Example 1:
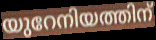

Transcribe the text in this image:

യുറേനിയത്തിന്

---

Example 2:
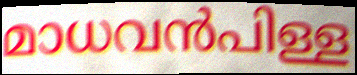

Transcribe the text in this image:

മാധവൻപിള്ള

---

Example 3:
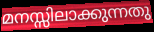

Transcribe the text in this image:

മനസ്സിലാക്കുന്നതു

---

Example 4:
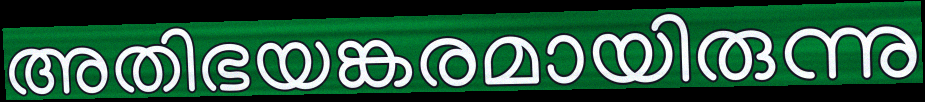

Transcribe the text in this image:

അതിഭയങ്കരമായിരുന്നു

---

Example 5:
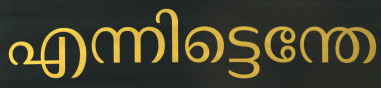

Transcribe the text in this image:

എന്നിട്ടെന്തേ